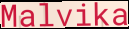
Malvika